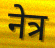
नेत्र